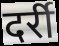
दर्री